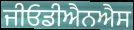
ਜੀਓਡੀਐਨਐਸ